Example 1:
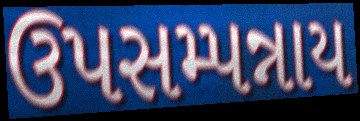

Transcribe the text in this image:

ઉપસમ્પન્નાય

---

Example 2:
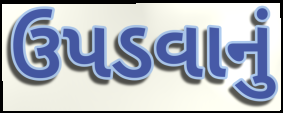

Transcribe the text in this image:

ઉપડવાનું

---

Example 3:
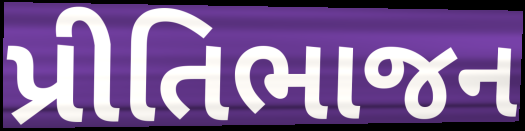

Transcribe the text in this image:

પ્રીતિભાજન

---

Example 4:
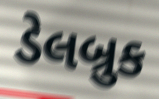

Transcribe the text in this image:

ડેલબ્રુક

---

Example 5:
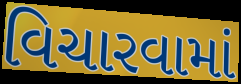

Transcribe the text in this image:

વિચારવામાં